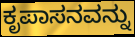
ಕೃಪಾಸನವನ್ನು